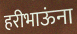
हरीभाऊंना